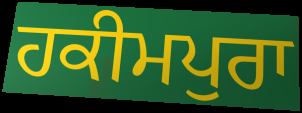
ਹਕੀਮਪੁਰਾ